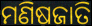
ମଣିଷଜାତି